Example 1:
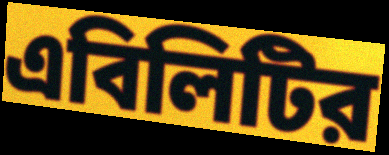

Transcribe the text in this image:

এবিলিটির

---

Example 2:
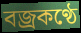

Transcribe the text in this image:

বজ্রকণ্ঠে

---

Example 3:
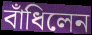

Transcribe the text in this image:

বাঁধিলেন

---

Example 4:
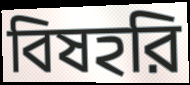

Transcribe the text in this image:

বিষহরি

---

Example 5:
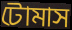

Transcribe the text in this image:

টোমাস